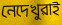
নেদেখুৱাই